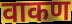
वाकण